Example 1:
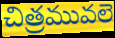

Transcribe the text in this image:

చిత్రమువలె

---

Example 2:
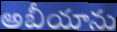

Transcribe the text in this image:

అబీయాను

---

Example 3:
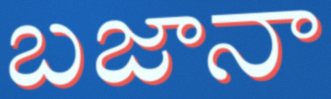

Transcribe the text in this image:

బజానా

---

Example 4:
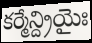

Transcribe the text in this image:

కర్మేన్ద్రియైః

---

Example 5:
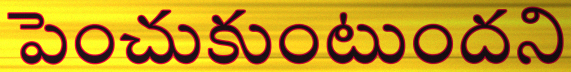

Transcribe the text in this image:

పెంచుకుంటుందని